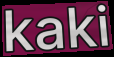
kaki